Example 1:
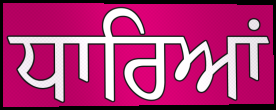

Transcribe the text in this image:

ਧਾਰਿਆਂ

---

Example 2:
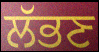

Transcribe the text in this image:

ਲੱਭਣ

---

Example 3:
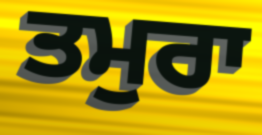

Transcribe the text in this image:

ਤਮੁਰਾ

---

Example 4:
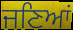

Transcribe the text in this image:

ਜਣਿਆਂ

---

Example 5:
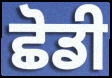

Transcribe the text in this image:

ਛੋਡੀ